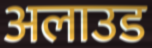
अलाउड